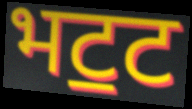
भट॒ट